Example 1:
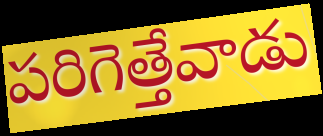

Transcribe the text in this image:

పరిగెత్తేవాడు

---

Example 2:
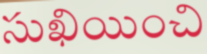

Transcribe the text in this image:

సుఖియించి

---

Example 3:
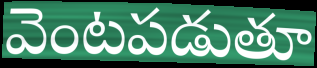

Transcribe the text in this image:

వెంటపడుతూ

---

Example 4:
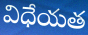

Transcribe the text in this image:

విధేయత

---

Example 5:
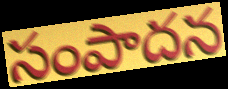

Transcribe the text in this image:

సంపాదన